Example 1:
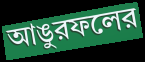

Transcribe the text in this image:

আঙুরফলের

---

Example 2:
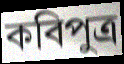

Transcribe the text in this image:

কবিপুত্র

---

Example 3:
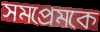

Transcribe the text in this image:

সমপ্রেমকে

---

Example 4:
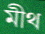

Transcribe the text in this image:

মীথ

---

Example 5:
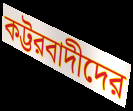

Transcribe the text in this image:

কট্টরবাদীদের